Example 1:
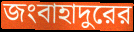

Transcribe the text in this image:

জংবাহাদুরের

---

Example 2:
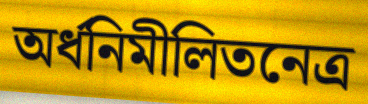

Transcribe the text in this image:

অর্ধনিমীলিতনেত্র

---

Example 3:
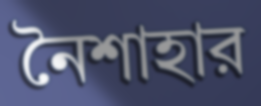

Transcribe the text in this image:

নৈশাহার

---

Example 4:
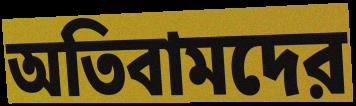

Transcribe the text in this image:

অতিবামদের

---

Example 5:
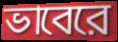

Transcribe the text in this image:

ভাবেরে